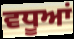
ਵਧੂਆਂ